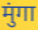
मुंगा